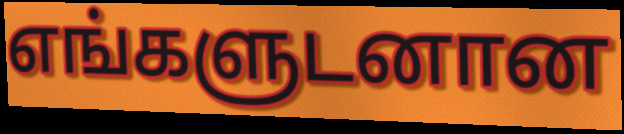
எங்களுடனான